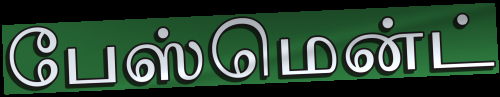
பேஸ்மென்ட்